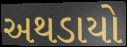
અથડાયો